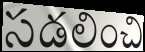
సడలించి